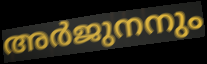
അർജുനനും